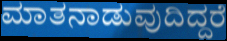
ಮಾತನಾಡುವುದಿದ್ದರೆ